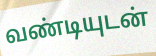
வண்டியுடன்